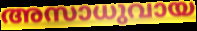
അസാധുവായ